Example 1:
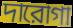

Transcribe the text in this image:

দারোগা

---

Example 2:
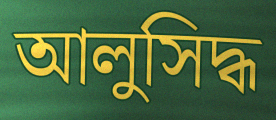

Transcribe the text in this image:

আলুসিদ্ধ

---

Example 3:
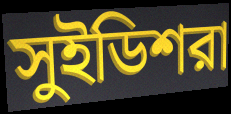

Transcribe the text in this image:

সুইডিশরা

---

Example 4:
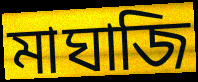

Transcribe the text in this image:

মাঘাজি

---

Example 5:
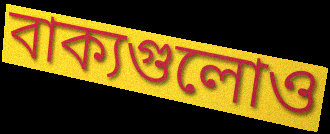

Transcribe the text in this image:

বাক্যগুলোও